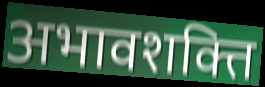
अभावशक्ति